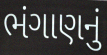
ભંગાણનું